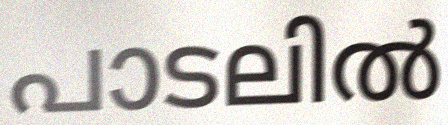
പാടലിൽ